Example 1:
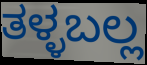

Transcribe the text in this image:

ತಳ್ಳಬಲ್ಲ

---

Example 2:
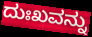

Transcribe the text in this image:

ದುಃಖವನ್ನು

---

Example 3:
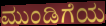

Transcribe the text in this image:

ಮುಂಡಿಗೆಯ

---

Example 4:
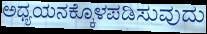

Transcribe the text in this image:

ಅಧ್ಯಯನಕ್ಕೊಳಪಡಿಸುವುದು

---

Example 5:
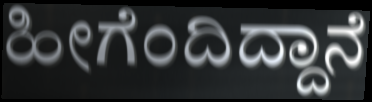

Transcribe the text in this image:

ಹೀಗೆಂದಿದ್ದಾನೆ